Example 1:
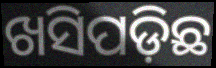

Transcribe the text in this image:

ଖସିପଡ଼ିଛ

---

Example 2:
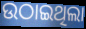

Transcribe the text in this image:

ଉଠାଇଥିଲା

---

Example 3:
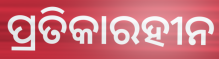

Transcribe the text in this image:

ପ୍ରତିକାରହୀନ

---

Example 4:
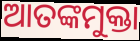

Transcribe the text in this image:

ଆତଙ୍କମୁକ୍ତା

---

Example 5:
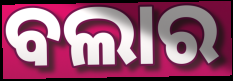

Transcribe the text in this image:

ବଲାର